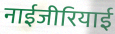
नाईजीरियाई